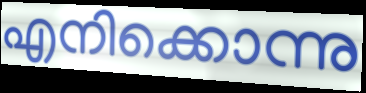
എനിക്കൊന്നു